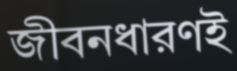
জীবনধারণই